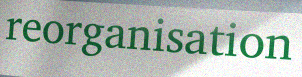
reorganisation